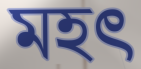
মহত্‍